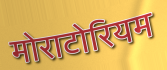
मोराटोरियम